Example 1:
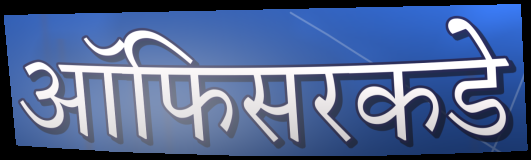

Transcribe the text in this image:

ऑफिसरकडे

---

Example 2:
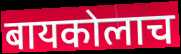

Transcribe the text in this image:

बायकोलाच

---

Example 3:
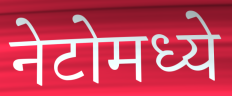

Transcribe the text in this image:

नेटोमध्ये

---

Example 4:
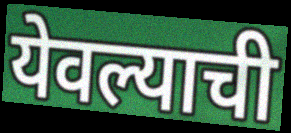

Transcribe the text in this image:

येवल्याची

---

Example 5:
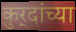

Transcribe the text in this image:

कुर्दांच्या